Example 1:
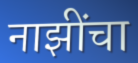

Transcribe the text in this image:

नाझींचा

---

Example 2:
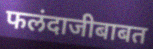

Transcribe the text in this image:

फलंदाजीबाबत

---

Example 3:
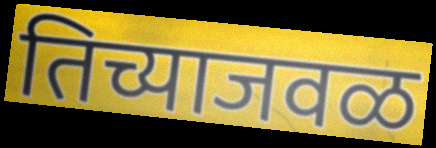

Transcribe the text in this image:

तिच्याजवळ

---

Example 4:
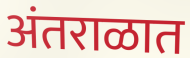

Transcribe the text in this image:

अंतराळात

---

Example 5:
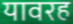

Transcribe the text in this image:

यावरह